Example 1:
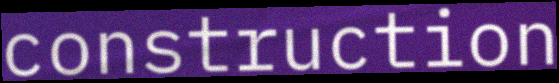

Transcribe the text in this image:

construction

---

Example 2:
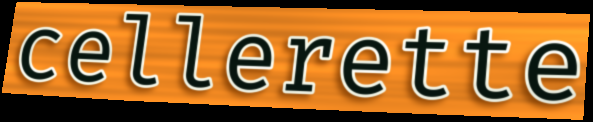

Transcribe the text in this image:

cellerette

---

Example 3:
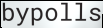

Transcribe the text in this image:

bypolls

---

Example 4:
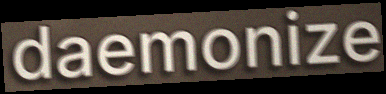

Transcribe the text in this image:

daemonize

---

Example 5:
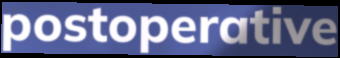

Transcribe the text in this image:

postoperative